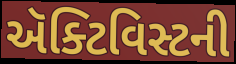
ઍક્ટિવિસ્ટની